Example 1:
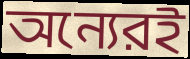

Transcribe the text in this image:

অন্যেরই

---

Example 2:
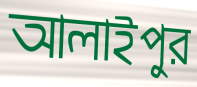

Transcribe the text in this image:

আলাইপুর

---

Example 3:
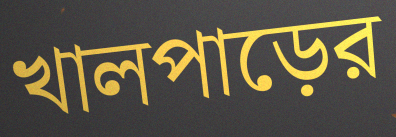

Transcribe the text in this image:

খালপাড়ের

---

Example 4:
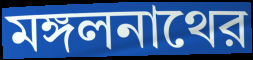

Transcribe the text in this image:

মঙ্গলনাথের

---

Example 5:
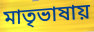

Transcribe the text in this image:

মাতৃভাষায়